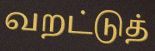
வறட்டுத்